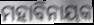
ମହାବିନାୟକ